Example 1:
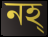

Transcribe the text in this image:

নহ্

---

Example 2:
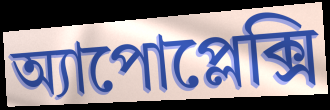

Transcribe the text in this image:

অ্যাপোপ্লেক্সি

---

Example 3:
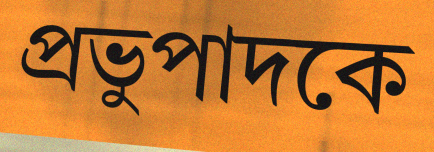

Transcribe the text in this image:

প্রভুপাদকে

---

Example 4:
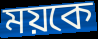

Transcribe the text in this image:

ময়কে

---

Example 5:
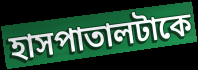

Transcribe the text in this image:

হাসপাতালটাকে